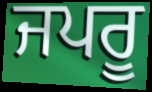
ਜਪਰੂ